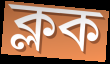
ক্লক